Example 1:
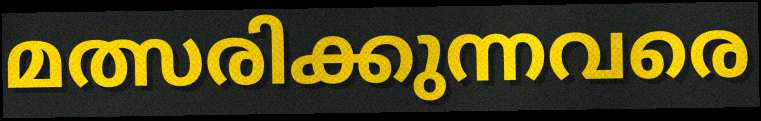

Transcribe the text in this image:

മത്സരിക്കുന്നവരെ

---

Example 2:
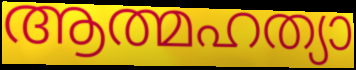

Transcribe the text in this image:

ആത്മഹത്യാ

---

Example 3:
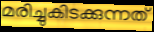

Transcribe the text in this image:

മരിച്ചുകിടക്കുന്നത്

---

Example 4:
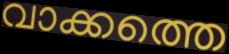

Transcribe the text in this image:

വാക്കത്തെ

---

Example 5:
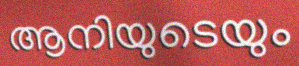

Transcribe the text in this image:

ആനിയുടെയും